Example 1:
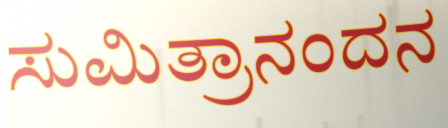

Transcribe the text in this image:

ಸುಮಿತ್ರಾನಂದನ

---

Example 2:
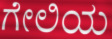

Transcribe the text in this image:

ಗೇಲಿಯ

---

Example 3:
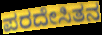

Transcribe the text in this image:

ಪರದೇಸಿತನ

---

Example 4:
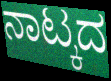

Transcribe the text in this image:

ನಾಟ್ಕದ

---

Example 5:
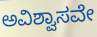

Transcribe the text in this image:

ಅವಿಶ್ವಾಸವೇ